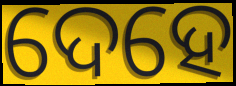
ଦେହେ